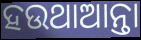
ହଉଥାଆନ୍ତା